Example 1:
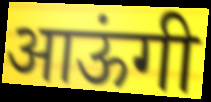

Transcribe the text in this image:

आऊंगी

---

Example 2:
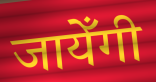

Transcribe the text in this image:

जायेँगी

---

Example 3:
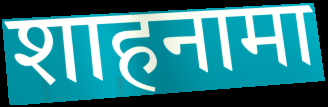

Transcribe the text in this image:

शाहनामा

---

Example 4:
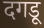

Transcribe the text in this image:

दगडू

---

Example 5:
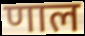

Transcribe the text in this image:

णाल